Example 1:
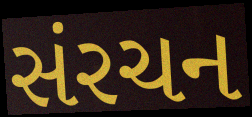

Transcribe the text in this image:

સંરચન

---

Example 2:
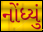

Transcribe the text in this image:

નોંધ્યું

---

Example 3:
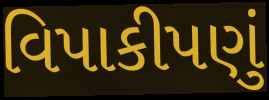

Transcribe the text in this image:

વિપાકીપણું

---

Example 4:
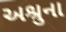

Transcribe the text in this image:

અશ્રુના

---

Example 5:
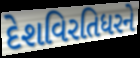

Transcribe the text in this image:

દેશવિરતિધરને